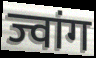
ज्वांग